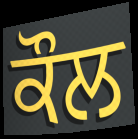
ਕੌਲ